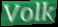
Volk